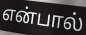
என்பால்